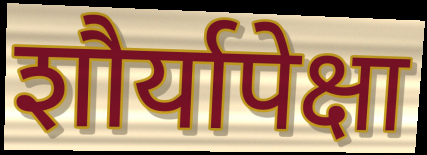
शौर्यापेक्षा